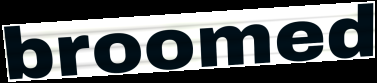
broomed